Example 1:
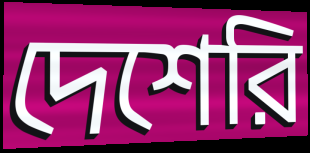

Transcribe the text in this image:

দেশেরি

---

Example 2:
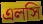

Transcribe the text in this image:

এলসি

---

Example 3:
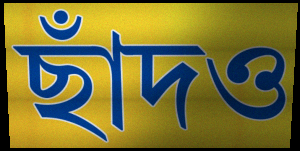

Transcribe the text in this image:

ছাঁদও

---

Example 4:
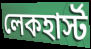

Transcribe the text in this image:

লেকহার্স্ট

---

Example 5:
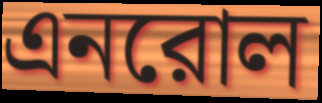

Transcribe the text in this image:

এনরোল